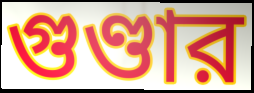
গুণ্ডার